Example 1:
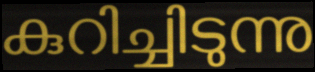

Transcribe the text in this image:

കുറിച്ചിടുന്നു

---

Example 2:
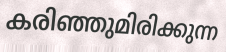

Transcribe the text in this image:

കരിഞ്ഞുമിരിക്കുന്ന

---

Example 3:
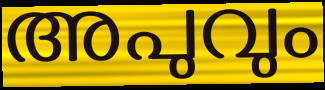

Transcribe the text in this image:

അപുവും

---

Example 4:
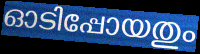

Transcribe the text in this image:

ഓടിപ്പോയതും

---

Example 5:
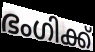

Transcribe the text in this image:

ഭംഗിക്ക്